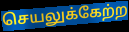
செயலுக்கேற்ற